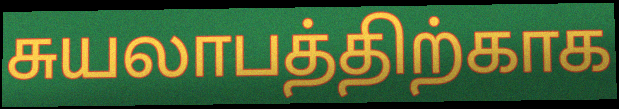
சுயலாபத்திற்காக